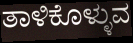
ತಾಳಿಕೊಳ್ಳುವ